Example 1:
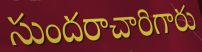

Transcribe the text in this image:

సుందరాచారిగారు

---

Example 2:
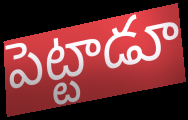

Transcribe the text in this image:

పెట్టాడూ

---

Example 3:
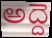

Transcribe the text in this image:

అద్దె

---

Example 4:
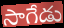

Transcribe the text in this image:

సాగేడు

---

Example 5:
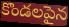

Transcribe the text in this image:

కొండలపైన